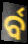
ର୍ବ